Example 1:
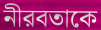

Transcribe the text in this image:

নীরবতাকে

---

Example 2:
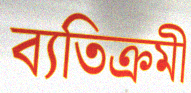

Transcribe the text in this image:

ব্যতিক্রমী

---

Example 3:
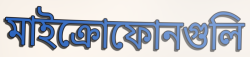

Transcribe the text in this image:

মাইক্রোফোনগুলি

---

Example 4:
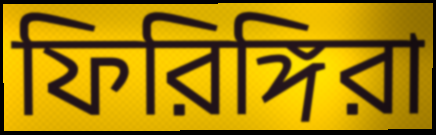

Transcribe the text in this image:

ফিরিঙ্গিরা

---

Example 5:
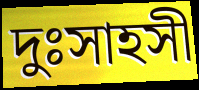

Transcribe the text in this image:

দুঃসাহসী